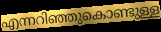
എന്നറിഞ്ഞുകൊണ്ടുള്ള